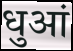
धुआं